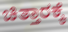
ಚಿತ್ತಾರಕ್ಕೆ